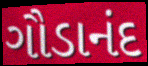
ગૌડાનંદ